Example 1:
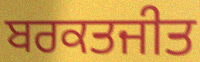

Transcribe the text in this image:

ਬਰਕਤਜੀਤ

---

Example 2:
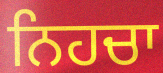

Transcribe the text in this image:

ਨਿਹਚਾ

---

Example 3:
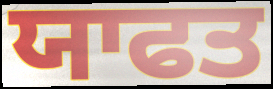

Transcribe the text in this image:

ਯਾਫਤ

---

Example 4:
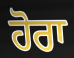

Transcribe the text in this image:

ਹੋਰਾ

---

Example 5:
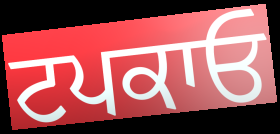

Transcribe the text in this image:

ਟਪਕਾਓ